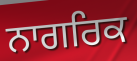
ਨਾਗਰਿਕ